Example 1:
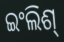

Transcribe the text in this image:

ଇଂଲିଶ୍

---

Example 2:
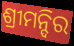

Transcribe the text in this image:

ଶ୍ରୀମନ୍ଦିର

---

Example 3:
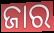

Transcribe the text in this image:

ଜାର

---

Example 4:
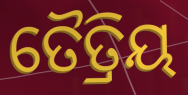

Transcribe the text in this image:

ତୈତ୍ରିୟ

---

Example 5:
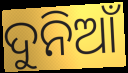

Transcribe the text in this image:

ଦୁନିଆଁ